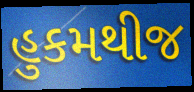
હુકમથીજ